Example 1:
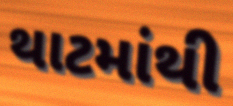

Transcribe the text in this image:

થાટમાંથી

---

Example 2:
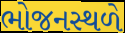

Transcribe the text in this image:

ભોજનસ્થળે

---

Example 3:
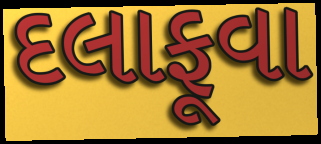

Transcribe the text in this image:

દલાફૂવા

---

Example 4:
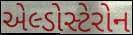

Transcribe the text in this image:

એલ્ડોસ્ટેરોન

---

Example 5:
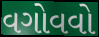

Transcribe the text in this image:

વગોવવો